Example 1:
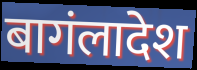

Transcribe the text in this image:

बागंलादेश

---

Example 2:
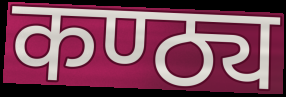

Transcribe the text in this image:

कण्ठ्य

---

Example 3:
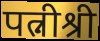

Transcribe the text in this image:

पत्नीश्री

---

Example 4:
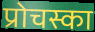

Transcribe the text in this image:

प्रोचस्का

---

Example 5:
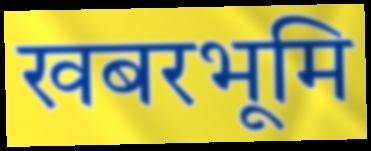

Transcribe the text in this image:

खबरभूमि